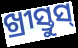
ଖ୍ରୀସ୍ତୁସ୍